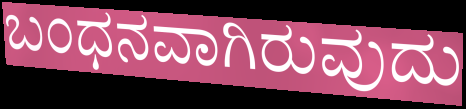
ಬಂಧನವಾಗಿರುವುದು